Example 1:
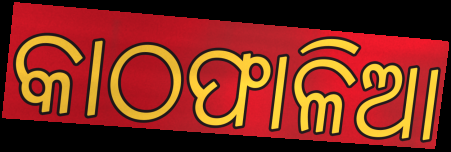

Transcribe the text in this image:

କାଠଫାଳିଆ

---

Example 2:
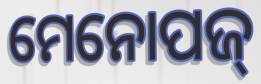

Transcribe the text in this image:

ମେନୋପଜ୍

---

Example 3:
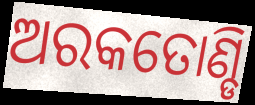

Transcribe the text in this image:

ଅରକତୋଣ୍ଡି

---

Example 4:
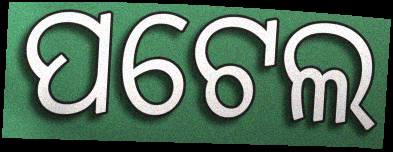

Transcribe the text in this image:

ପଟେଲ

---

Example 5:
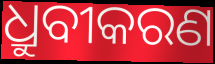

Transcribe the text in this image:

ଧ୍ରୁବୀକରଣ